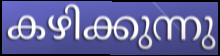
കഴിക്കുന്നു